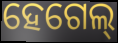
ହେଗେଲ୍